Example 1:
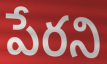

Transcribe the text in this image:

పేరని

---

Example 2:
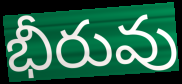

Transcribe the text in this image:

భీరువు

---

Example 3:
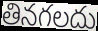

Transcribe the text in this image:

తినగలదు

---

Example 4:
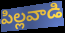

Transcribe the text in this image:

పిల్లవాడి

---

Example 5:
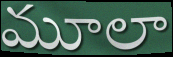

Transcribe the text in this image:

మూలా